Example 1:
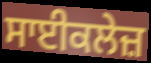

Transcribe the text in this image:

ਸਾਈਕਲੇਜ਼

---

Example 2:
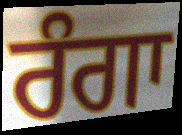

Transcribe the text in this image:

ਰੰਗਾ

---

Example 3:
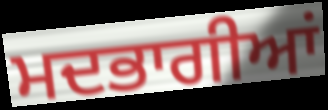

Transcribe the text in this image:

ਮਦਭਾਗੀਆਂ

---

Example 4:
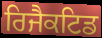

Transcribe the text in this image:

ਰਿਜੈਕਟਿਡ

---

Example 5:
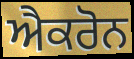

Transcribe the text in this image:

ਐਕਰੋਨ